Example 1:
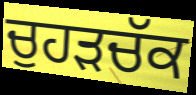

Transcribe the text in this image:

ਚੁਹੜਚੱਕ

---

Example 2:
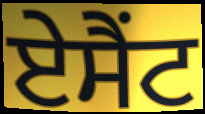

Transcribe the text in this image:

ਏਸੈਂਟ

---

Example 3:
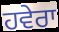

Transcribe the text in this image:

ਹਵੇਰਾ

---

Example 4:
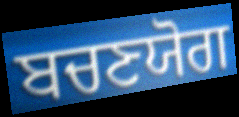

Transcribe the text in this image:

ਬਚਣਯੋਗ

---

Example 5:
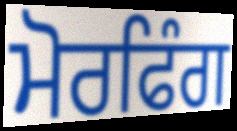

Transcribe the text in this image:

ਮੋਰਫਿੰਗ